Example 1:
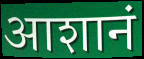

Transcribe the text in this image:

आशानं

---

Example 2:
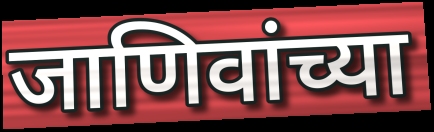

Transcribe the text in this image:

जाणिवांच्या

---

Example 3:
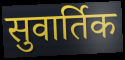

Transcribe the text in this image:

सुवार्तिक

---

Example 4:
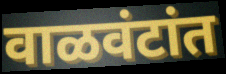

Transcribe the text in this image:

वाळवंटांत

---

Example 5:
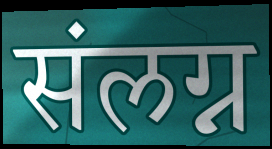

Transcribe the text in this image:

संलग्न